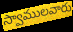
స్వాములవారు